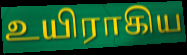
உயிராகிய